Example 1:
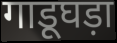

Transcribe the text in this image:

गाडूघड़ा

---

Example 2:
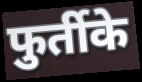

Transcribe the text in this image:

फुर्तीके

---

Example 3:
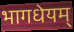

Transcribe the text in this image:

भागधेयम्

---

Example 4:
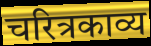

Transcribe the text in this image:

चरित्रकाव्य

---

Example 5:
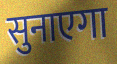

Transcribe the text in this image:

सुनाएगा